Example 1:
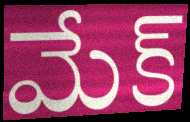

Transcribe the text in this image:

మేక్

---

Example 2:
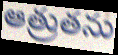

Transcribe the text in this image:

ఆత్రుతను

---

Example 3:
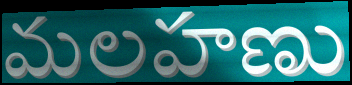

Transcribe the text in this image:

మలహణు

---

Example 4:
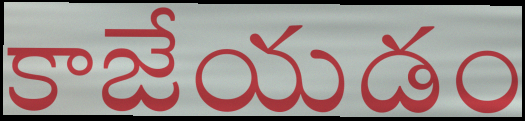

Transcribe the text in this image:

కాజేయడం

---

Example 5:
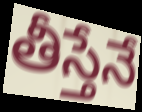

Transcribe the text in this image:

తీస్తేనే